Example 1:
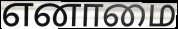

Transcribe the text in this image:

எனாமை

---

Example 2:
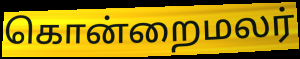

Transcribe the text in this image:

கொன்றைமலர்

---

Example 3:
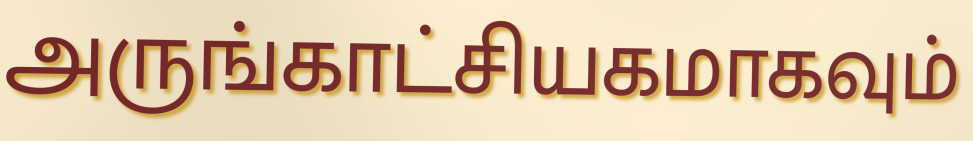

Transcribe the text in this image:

அருங்காட்சியகமாகவும்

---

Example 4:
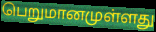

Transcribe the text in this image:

பெறுமானமுள்ளது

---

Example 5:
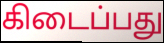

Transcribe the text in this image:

கிடைப்பது